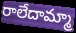
రాలేదామ్మా